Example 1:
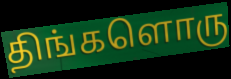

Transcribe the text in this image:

திங்களொரு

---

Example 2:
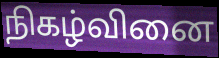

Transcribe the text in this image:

நிகழ்வினை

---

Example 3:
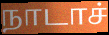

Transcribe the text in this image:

நாடாச்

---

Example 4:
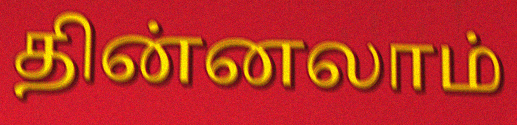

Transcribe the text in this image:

தின்னலாம்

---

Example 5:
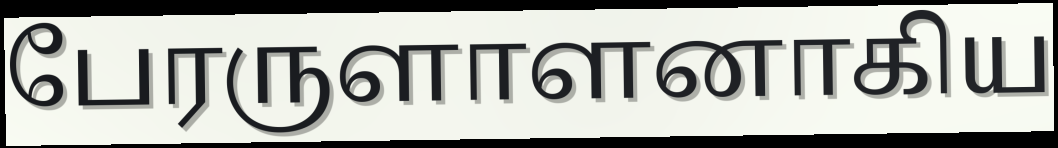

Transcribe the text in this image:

பேரருளாளனாகிய